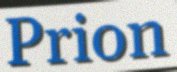
Prion